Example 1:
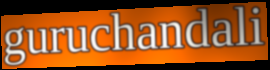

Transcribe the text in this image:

guruchandali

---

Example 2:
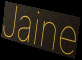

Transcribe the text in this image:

Jaine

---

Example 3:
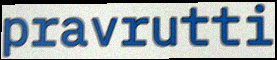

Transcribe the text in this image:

pravrutti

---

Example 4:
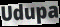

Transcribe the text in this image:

Udupa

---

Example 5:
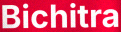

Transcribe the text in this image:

Bichitra